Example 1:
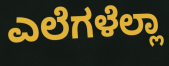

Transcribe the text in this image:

ಎಲೆಗಳೆಲ್ಲಾ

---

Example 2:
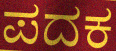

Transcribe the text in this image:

ಪದಕ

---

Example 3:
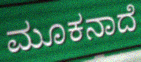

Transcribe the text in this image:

ಮೂಕನಾದೆ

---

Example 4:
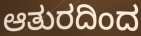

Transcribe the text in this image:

ಆತುರದಿಂದ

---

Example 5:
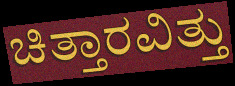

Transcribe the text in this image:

ಚಿತ್ತಾರವಿತ್ತು